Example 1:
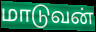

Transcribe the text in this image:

மாடுவன்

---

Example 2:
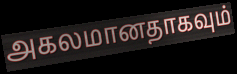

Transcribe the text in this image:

அகலமானதாகவும்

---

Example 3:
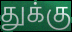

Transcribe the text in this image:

துக்கு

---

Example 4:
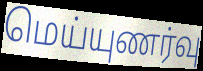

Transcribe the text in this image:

மெய்யுணர்வு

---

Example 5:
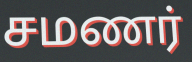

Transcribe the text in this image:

சமணர்